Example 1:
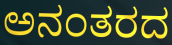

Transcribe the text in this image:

ಅನಂತರದ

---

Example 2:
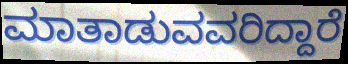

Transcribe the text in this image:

ಮಾತಾಡುವವರಿದ್ದಾರೆ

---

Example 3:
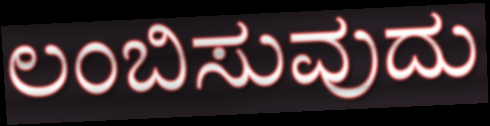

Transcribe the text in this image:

ಲಂಬಿಸುವುದು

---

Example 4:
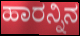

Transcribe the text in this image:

ಹಾರನ್ನಿನ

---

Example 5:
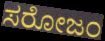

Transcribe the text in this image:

ಸರೋಜಂ